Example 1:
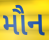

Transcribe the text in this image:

મૌન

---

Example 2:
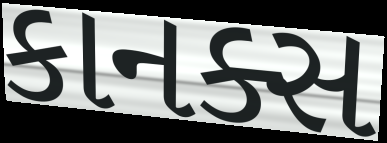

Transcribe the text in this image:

કાનક્સ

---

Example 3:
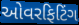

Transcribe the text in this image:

ઓવરફિટિંગ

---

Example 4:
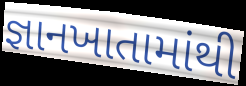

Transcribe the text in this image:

જ્ઞાનખાતામાંથી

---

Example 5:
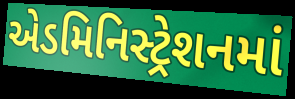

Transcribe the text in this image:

એડમિનિસ્ટ્રેશનમાં